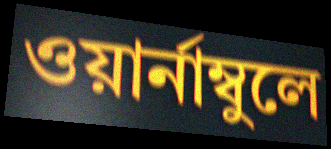
ওয়ার্নাম্বুলে